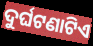
ଦୁର୍ଘଟଣାଟିଏ